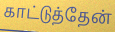
காட்டுத்தேன்